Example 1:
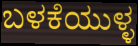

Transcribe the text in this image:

ಬಳಕೆಯುಳ್ಳ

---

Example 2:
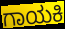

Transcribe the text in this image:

ಗಾಯಕಿ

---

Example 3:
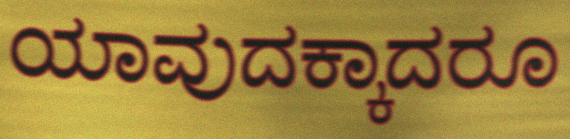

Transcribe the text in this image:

ಯಾವುದಕ್ಕಾದರೂ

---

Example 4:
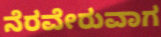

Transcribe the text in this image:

ನೆರವೇರುವಾಗ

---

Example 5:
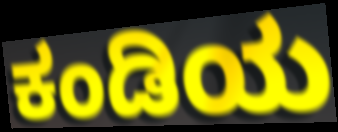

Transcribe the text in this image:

ಕಂಡಿಯ